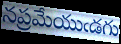
నప్రమేయుఁడగు